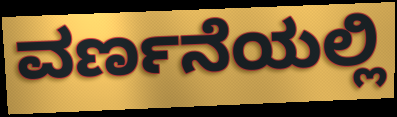
ವರ್ಣನೆಯಲ್ಲಿ